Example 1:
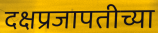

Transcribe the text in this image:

दक्षप्रजापतीच्या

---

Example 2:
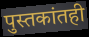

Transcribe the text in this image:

पुस्तकांतही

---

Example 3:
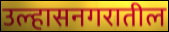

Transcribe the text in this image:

उल्हासनगरातील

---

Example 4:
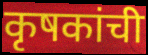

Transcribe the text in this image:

कृषकांची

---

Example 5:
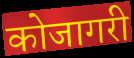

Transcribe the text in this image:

कोजागरी